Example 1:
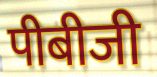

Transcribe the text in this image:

पीबीजी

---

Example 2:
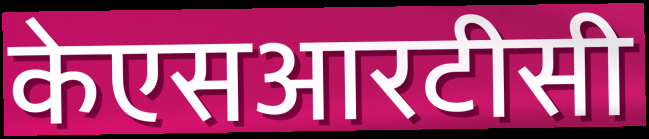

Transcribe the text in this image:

केएसआरटीसी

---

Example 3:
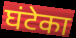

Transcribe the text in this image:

घंटेका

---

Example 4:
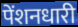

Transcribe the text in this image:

पेंशनधारी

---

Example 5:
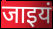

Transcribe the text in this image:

जाइयं